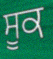
ਸੂਕ